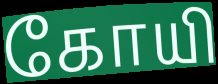
கோயி